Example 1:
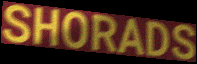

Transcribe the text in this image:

SHORADS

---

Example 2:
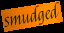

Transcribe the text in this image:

smudged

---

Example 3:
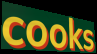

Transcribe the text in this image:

cooks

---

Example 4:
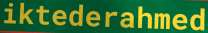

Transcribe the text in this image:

iktederahmed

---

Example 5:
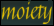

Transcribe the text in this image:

moiety